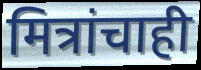
मित्रांचाही